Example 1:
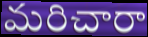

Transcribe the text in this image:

మరిచారా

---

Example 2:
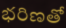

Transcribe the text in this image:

భరిణతో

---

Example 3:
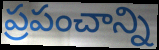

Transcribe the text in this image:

ప్రపంచాన్ని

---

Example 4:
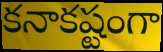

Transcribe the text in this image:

కనాకష్టంగా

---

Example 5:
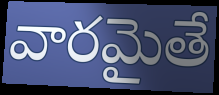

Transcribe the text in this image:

వారమైతే